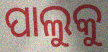
ପାଲୁକୁ